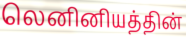
லெனினியத்தின்